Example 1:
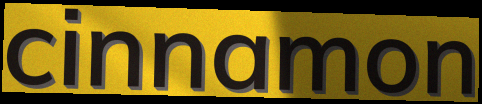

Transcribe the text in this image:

cinnamon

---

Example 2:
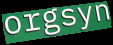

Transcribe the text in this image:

orgsyn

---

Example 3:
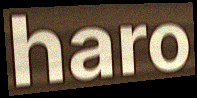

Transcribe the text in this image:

haro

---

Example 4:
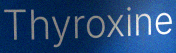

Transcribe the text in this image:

Thyroxine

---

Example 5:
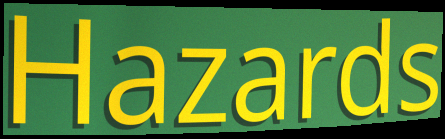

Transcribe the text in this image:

Hazards